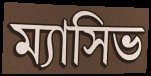
ম্যাসিভ